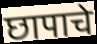
छापाचे